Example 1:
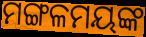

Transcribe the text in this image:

ମଙ୍ଗଳମୟଙ୍କ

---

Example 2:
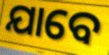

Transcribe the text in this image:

ଯାବେ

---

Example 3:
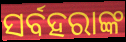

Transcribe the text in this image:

ସର୍ବହରାଙ୍କ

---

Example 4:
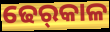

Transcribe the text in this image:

ଢେର୍‌କାଳ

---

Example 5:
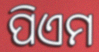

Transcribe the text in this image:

ପିଏମ